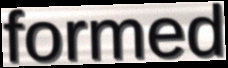
formed